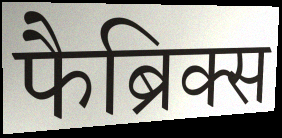
फैब्रिक्स